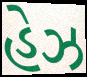
હેઝ